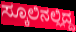
ಸ್ಕೂಲಿನಲ್ಲಿದ್ದ